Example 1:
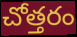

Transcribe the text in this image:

చోత్తరం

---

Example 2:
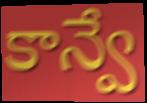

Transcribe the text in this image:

కాన్వే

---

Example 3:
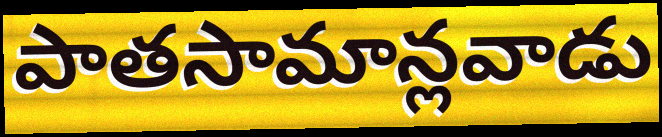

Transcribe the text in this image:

పాతసామాన్లవాడు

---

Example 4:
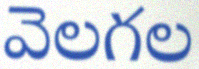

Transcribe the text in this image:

వెలగల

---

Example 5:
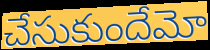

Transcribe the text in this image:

చేసుకుందేమో